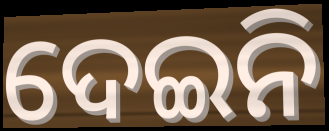
ଦେଇନି